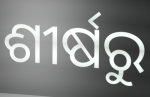
ଶୀର୍ଷରୁ